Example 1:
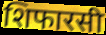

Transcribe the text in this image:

शिफारसी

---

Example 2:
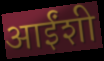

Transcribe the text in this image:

आईंशी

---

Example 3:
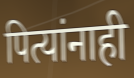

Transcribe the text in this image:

पित्यांनाही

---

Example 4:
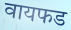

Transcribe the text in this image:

वायफड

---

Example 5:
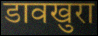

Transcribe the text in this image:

डावखुरा